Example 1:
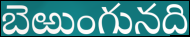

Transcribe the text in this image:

బెఱుంగునది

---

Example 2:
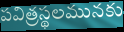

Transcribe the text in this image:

పవిత్రస్థలమునకు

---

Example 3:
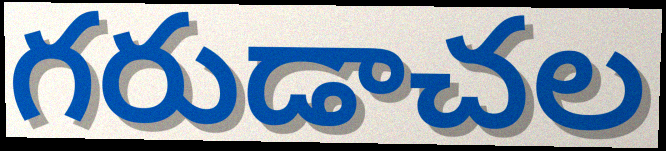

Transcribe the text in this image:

గరుడాచల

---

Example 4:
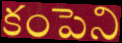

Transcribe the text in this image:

కంపెని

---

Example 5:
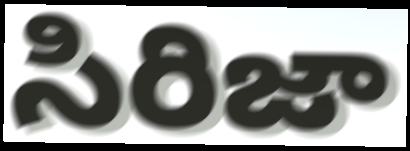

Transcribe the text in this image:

సిరిజా